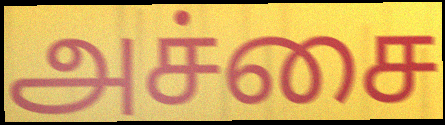
அச்சை